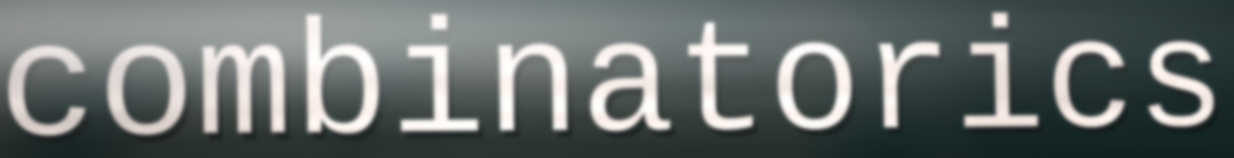
combinatorics